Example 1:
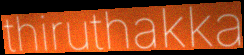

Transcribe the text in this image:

thiruthakka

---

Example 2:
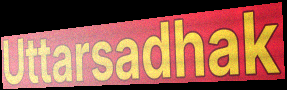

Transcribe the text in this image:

Uttarsadhak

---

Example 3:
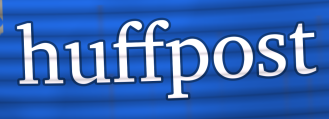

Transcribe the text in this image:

huffpost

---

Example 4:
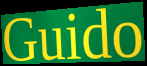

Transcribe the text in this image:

Guido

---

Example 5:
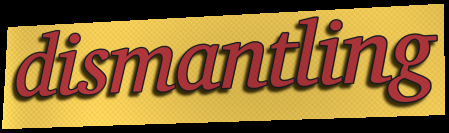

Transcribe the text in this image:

dismantling